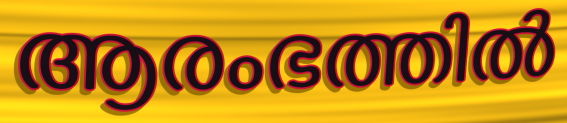
ആരംഭത്തിൽ